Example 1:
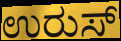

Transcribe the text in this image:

ಉರುಸ್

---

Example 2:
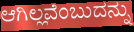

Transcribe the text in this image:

ಆಗಿಲ್ಲವೆಂಬುದನ್ನು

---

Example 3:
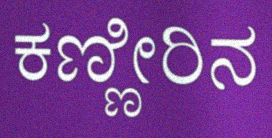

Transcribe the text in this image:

ಕಣ್ಣೀರಿನ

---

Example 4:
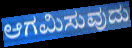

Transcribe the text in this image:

ಆಗಮಿಸುವುದು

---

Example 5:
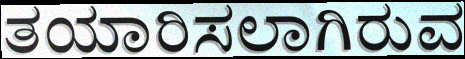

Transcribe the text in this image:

ತಯಾರಿಸಲಾಗಿರುವ